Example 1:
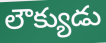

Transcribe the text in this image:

లౌక్యుడు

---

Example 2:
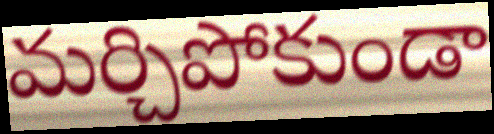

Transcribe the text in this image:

మర్చిపోకుండా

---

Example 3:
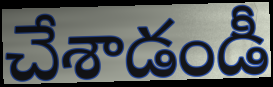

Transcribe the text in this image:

చేశాడండీ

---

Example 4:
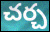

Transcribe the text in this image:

చర్చ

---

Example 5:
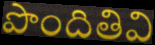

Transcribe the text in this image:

పొందితివి